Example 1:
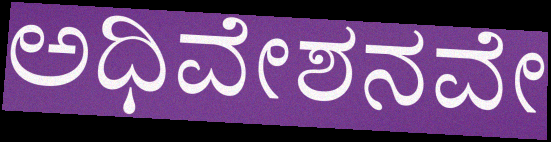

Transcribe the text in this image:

ಅಧಿವೇಶನವೇ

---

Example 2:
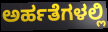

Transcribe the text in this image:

ಅರ್ಹತೆಗಳಲ್ಲಿ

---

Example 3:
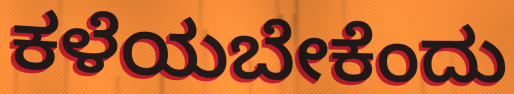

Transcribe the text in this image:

ಕಳೆಯಬೇಕೆಂದು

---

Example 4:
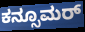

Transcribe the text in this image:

ಕನ್ಸೂಮರ್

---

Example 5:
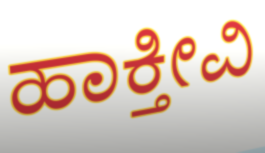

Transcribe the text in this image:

ಹಾಕ್ತೀವಿ